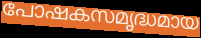
പോഷകസമൃദ്ധമായ